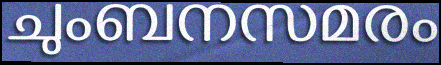
ചുംബനസമരം